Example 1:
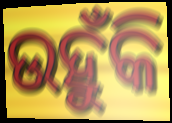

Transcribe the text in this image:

ଉହୁଁକି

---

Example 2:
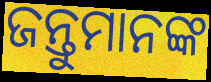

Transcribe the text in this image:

ଜନ୍ତୁମାନଙ୍କ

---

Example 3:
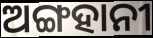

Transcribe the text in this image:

ଅଙ୍ଗହାନୀ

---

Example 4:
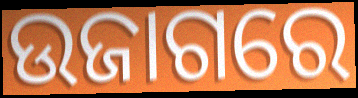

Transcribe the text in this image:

ଉଜାଗରେ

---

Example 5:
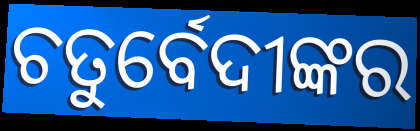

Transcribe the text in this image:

ଚତୁର୍ବେଦୀଙ୍କର